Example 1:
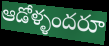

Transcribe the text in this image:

ఆడోళ్ళందరూ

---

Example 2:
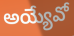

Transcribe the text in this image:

అయ్యేవో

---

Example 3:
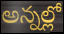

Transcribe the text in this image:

అన్నల్లో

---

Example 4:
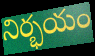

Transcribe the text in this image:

నిర్భయం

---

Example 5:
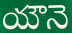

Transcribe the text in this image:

యౌనె